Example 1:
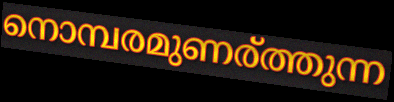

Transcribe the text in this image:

നൊമ്പരമുണര്ത്തുന്ന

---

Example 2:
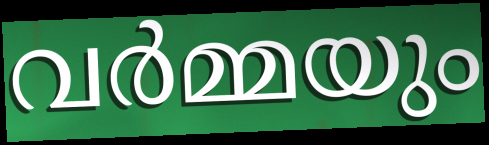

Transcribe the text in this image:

വർമ്മയും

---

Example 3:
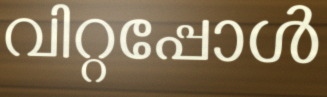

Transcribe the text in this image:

വിറ്റപ്പോൾ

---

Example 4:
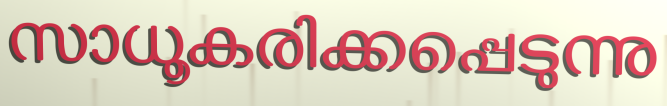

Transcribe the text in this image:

സാധൂകരിക്കപ്പെടുന്നു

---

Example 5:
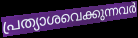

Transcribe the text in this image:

പ്രത്യാശവെക്കുന്നവർ